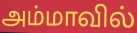
அம்மாவில்